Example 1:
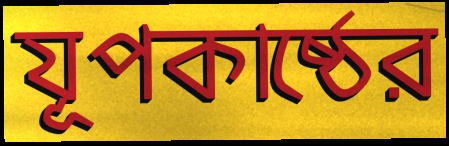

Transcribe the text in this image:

যূপকাষ্ঠের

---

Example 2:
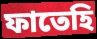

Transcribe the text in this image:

ফাতেহি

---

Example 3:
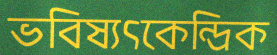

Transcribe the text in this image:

ভবিষ্যৎকেন্দ্রিক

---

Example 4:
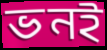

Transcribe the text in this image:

ভনই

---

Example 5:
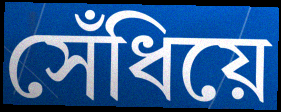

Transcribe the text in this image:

সেঁধিয়ে